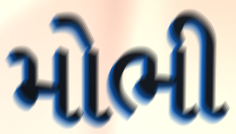
મોભી